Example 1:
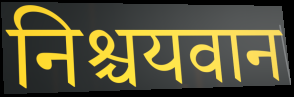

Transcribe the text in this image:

निश्चयवान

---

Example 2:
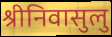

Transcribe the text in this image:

श्रीनिवासुलु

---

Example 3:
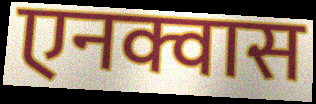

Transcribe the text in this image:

एनक्वास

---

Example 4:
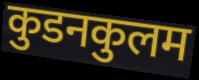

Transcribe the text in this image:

कुडनकुलम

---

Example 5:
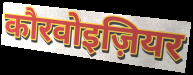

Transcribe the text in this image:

कौरवोइज़ियर